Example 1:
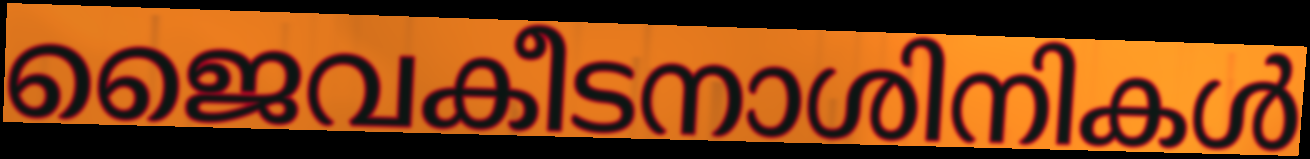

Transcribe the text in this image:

ജൈവകീടനാശിനികൾ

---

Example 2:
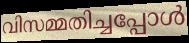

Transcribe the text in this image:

വിസമ്മതിച്ചപ്പോൾ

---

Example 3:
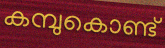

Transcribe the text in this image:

കമ്പുകൊണ്ട്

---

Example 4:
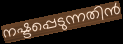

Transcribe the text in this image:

നഷ്ടപ്പെടുന്നതിൻ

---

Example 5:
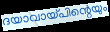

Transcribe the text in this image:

ദയാവായ്പിന്റെയും